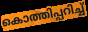
കൊത്തിപ്പറിച്ച്